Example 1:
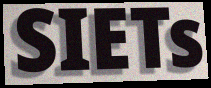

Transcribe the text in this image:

SIETs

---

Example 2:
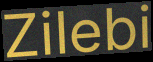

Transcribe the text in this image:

Zilebi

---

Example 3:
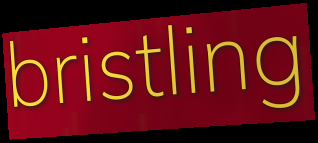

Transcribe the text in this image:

bristling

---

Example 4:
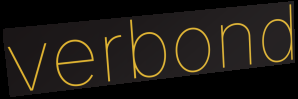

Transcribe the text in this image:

verbond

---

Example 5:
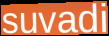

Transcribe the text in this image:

suvadi